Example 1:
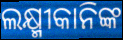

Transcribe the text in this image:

ଲକ୍ଷ୍ମୀକାନିଙ୍କ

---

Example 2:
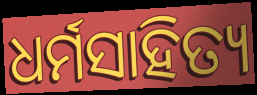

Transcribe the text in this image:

ଧର୍ମସାହିତ୍ୟ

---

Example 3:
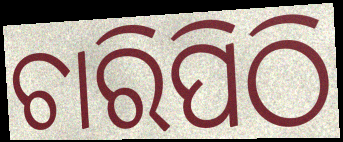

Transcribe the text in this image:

ଚାରିପିଠି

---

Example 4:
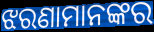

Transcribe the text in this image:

ଝରଣାମାନଙ୍କର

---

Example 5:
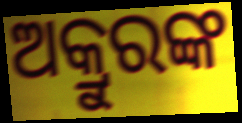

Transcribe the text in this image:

ଅକ୍ରୁରଙ୍କ